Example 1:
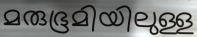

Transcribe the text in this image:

മരുഭൂമിയിലുള്ള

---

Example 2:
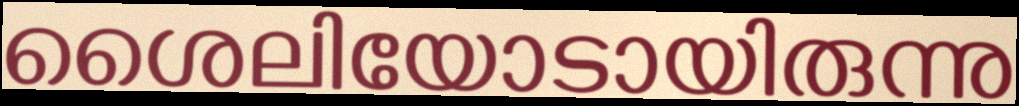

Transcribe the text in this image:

ശൈലിയോടായിരുന്നു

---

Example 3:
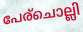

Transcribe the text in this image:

പേര്ചൊല്ലി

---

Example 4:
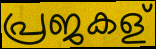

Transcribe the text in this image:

പ്രജകള്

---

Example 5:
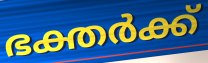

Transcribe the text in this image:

ഭക്തർക്ക്